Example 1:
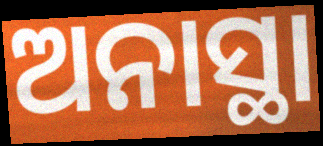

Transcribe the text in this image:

ଅନାସ୍ଥା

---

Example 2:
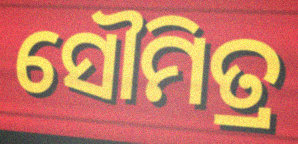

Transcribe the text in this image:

ସୌମିତ୍ର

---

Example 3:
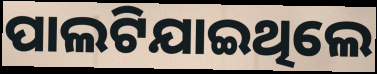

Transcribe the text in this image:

ପାଲଟିଯାଇଥିଲେ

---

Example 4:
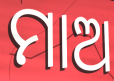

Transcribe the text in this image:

ମାଅ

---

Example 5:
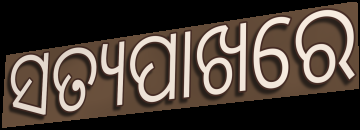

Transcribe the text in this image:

ସତ୍ୟପାଖରେ